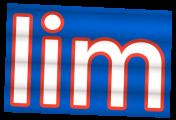
lim